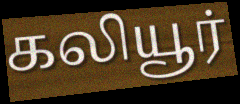
கலியூர்